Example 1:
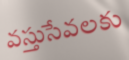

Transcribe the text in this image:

వస్తుసేవలకు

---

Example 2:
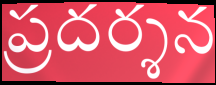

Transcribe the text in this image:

ప్రదర్శన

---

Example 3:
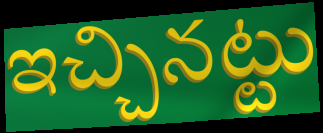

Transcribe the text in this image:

ఇచ్చినట్టు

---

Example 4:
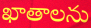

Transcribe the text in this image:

ఖాతాలను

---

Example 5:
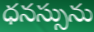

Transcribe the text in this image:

ధనస్సును